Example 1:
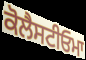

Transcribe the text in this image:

ਕੋਲੈਸਟੀਓਮਾ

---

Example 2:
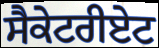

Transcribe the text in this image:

ਸੈਕੇਟਰੀਏਟ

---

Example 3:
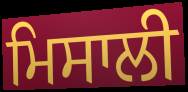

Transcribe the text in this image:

ਮਿਸਾਲੀ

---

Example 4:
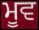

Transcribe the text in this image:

ਮੂਵ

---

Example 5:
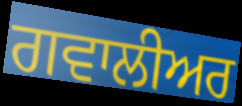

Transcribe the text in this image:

ਗਵਾਲੀਅਰ